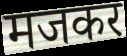
मजकर